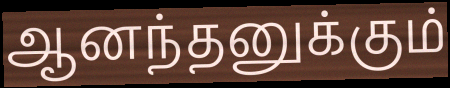
ஆனந்தனுக்கும்